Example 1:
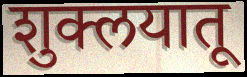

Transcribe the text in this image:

शुक्लयातू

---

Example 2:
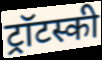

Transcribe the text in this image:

ट्रॉटस्की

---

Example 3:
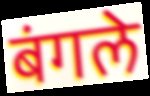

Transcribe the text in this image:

बंगले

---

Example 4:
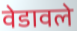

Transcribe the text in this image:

वेडावले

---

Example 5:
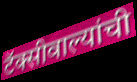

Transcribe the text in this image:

टॅक्सीवाल्यांची